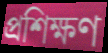
প্ৰশিক্ষণ